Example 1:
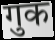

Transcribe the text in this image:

गुक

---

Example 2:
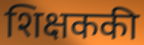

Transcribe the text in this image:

शिक्षककी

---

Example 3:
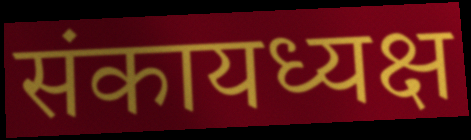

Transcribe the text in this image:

संकायध्यक्ष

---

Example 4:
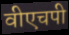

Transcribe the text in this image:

वीएचपी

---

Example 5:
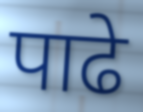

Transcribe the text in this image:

पाढे